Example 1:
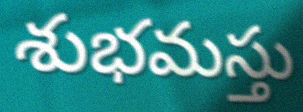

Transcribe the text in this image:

శుభమస్తు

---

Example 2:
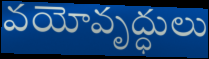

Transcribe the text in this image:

వయోవృద్ధులు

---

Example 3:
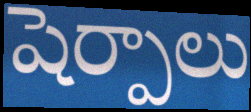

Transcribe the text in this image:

షెర్పాలు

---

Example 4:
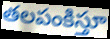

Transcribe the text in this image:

తలపంకిస్తూ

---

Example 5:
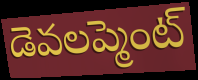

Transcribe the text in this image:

డెవలప్మెంట్